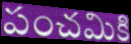
పంచమికి